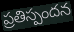
ప్రతిస్పందన